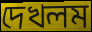
দেখলম